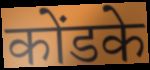
कोंडके